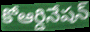
కోఆర్డినేషన్